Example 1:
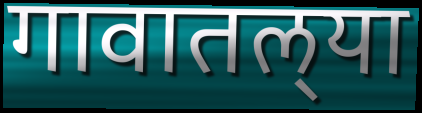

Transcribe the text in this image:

गावातल्या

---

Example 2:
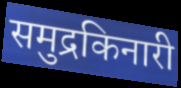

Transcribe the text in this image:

समुद्रकिनारी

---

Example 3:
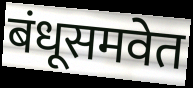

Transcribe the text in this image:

बंधूसमवेत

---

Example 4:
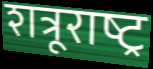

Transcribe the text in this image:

शत्रूराष्ट्र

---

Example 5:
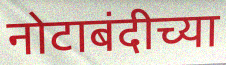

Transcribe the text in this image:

नोटाबंदीच्या